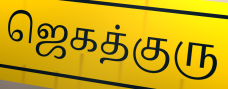
ஜெகத்குரு